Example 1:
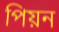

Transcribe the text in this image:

পিয়ন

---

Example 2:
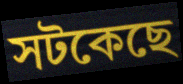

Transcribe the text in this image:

সটকেছে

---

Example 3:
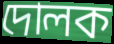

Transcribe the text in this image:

দোলক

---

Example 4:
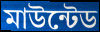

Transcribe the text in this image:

মাউন্টেড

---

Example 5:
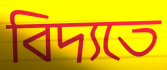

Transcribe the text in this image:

বিদ্যতে